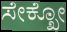
ಸೇಕ್ಖೋ